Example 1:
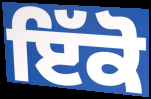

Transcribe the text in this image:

ਇੱਕੋ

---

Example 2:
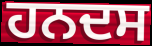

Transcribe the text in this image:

ਹਨਦਸ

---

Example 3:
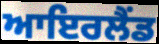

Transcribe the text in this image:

ਆਇਰਲੈਂਡ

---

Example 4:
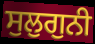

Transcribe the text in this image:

ਸੁਲੁਗੁਨੀ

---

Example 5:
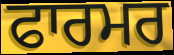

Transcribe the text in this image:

ਫਾਰਮਰ